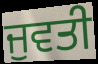
ਜੁਵਤੀ